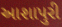
આશાપુરી